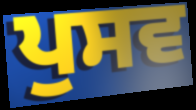
ਪੁਸਵ